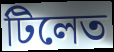
টিলেত